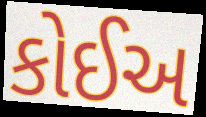
કોઈઅ